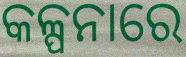
କଳ୍ପନାରେ